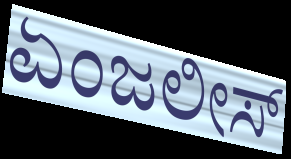
ಏಂಜಲೀಸ್